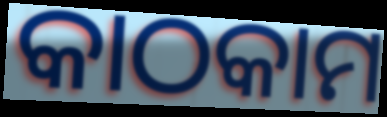
କାଠକାମ